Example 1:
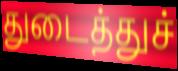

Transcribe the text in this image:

துடைத்துச்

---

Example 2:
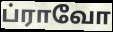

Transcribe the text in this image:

ப்ராவோ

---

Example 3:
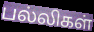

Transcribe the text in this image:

பல்லிகள்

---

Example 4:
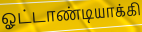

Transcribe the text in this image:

ஓட்டாண்டியாக்கி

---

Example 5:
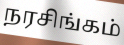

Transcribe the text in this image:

நரசிங்கம்